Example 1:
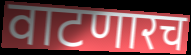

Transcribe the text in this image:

वाटणारच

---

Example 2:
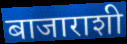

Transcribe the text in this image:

बाजाराशी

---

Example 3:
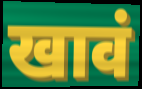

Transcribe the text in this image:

खावं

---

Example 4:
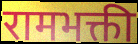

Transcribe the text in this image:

रामभक्ती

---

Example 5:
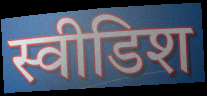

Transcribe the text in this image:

स्वीडिश